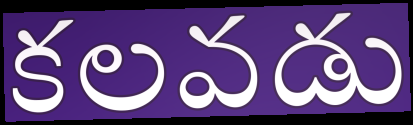
కలవడు